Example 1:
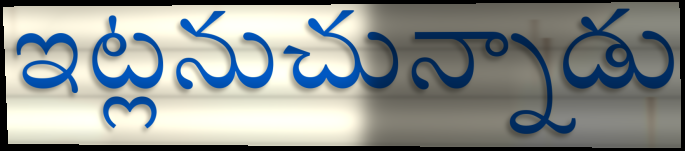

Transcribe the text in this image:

ఇట్లనుచున్నాడు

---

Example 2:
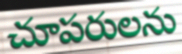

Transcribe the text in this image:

చూపరులను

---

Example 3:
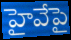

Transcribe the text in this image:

హైవేపై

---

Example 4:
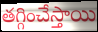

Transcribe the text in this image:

తగ్గించేస్తాయి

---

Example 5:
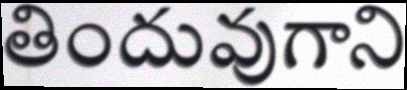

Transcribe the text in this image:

తిందువుగాని